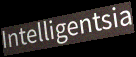
Intelligentsia